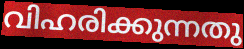
വിഹരിക്കുന്നതു